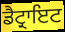
ਡੈਟ੍ਰਾਇਟ